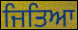
ਜਿਤਿਆ